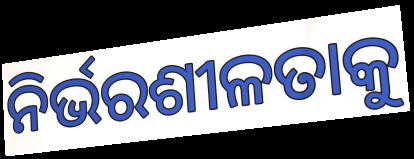
ନିର୍ଭରଶୀଳତାକୁ